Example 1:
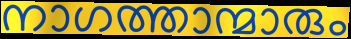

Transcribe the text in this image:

നാഗത്താന്മാരും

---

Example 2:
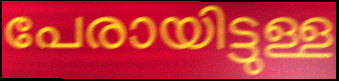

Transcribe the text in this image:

പേരായിട്ടുള്ള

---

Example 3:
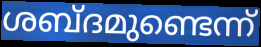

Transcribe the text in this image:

ശബ്ദമുണ്ടെന്ന്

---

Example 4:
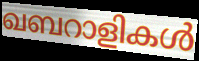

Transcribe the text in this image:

ഖബറാളികൾ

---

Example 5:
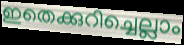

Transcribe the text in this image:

ഇതെക്കുറിച്ചെല്ലാം